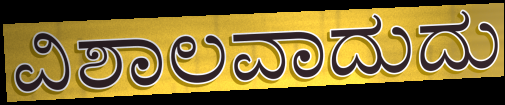
ವಿಶಾಲವಾದುದು